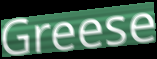
Greese